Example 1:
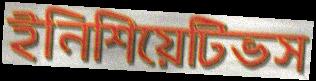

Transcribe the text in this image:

ইনিশিয়েটিভস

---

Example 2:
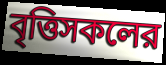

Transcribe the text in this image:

বৃত্তিসকলের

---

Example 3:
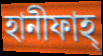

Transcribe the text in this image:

হানীফাহ্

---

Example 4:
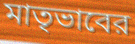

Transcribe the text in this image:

মাতৃভাবের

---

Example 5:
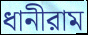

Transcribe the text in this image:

ধানীরাম